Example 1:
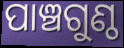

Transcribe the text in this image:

ପାଞ୍ଚଗୁଣ୍ଠ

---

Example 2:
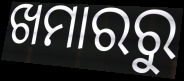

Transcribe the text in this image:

ଖମାରରୁ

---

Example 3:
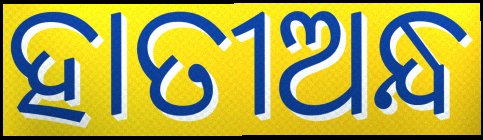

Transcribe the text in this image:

ହାତୀଅନ୍ଧ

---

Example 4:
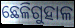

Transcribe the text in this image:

ଛେଳିଗୁହାଳ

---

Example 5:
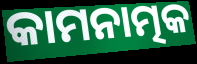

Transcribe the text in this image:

କାମନାତ୍ମକ